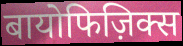
बायोफिज़िक्स